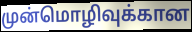
முன்மொழிவுக்கான